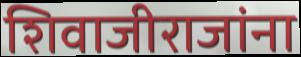
शिवाजीराजांना